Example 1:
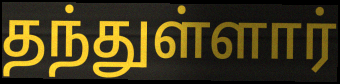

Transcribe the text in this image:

தந்துள்ளார்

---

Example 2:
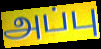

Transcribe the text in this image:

அப்பு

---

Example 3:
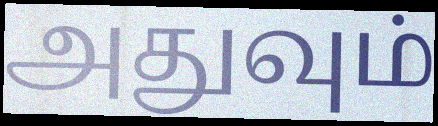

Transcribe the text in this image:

அதுவும்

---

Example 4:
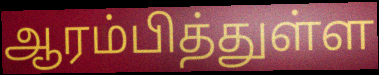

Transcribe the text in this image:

ஆரம்பித்துள்ள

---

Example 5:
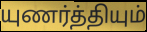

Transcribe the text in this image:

யுணர்த்தியும்